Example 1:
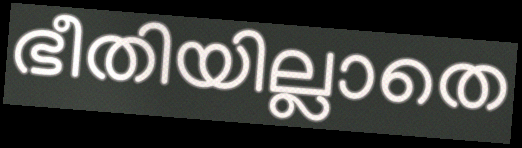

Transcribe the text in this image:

ഭീതിയില്ലാതെ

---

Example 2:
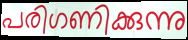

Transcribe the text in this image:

പരിഗണിക്കുന്നു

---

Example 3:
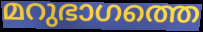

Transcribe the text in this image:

മറുഭാഗത്തെ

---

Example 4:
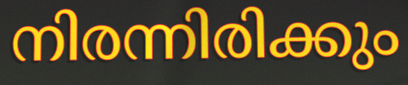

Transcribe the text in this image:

നിരന്നിരിക്കും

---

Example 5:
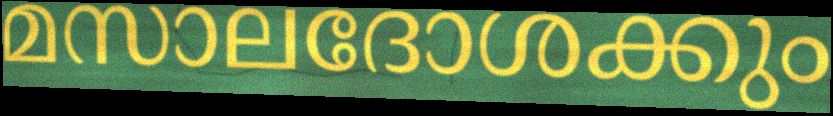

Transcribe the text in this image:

മസാലദോശക്കും